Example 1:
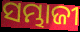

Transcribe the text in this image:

ସମ୍ଭାଜୀ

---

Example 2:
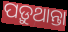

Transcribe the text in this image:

ପଡ଼ୁଥାନ୍ତା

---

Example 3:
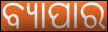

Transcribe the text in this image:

ବ୍ଯାପାର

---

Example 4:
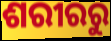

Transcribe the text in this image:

ଶରୀରରୁ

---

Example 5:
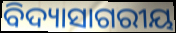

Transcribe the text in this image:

ବିଦ୍ୟାସାଗରୀୟ